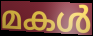
മകൾ